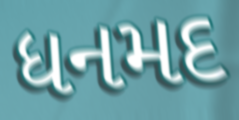
ધનમદ